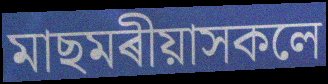
মাছমৰীয়াসকলে